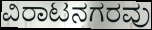
ವಿರಾಟನಗರವು